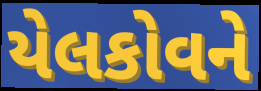
યેલકોવને